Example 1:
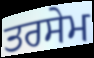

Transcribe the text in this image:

ਤਰਸੇਮ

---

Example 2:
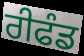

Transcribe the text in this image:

ਰੀਫੰਡ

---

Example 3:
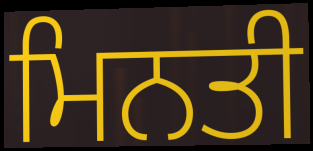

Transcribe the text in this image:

ਮਿਨਤੀ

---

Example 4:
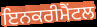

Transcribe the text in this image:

ਇਨਕਰੀਮੈਂਟਲ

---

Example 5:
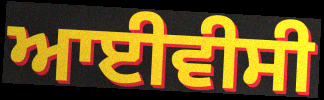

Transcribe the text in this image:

ਆਈਵੀਸੀ